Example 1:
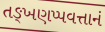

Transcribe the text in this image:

તઙ્ખણપ્પવત્તાનં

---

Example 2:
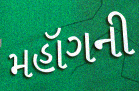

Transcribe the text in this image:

મહૉગની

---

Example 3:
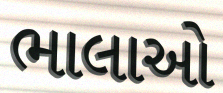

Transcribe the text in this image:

ભાલાઓ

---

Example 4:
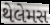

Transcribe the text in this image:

થેલેમસ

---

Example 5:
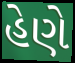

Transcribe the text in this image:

હેણે